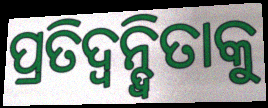
ପ୍ରତିଦ୍ୱନ୍ଦ୍ୱିତାକୁ